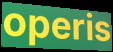
operis